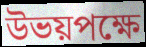
উভয়পক্ষে